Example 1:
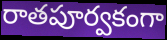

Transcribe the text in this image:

రాతపూర్వకంగా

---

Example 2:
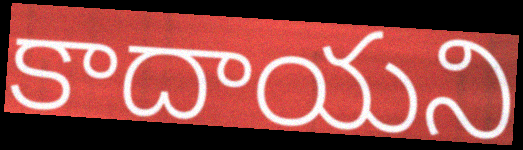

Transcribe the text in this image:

కాదాయని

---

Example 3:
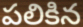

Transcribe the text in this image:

పలికిన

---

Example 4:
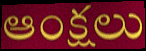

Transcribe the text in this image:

ఆంక్షలు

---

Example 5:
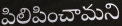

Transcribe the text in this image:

పిలిపించామని